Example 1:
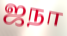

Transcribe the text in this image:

ஜநா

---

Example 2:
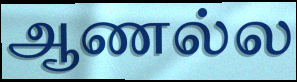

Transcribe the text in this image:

ஆணல்ல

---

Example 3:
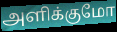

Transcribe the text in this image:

அளிக்குமோ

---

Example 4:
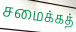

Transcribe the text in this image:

சமைக்கத்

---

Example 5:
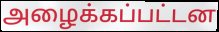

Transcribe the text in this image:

அழைக்கப்பட்டன